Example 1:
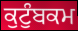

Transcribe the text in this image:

ਕੁਟੁੰਬਕਮ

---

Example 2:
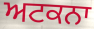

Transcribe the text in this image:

ਅਟਕਨਾ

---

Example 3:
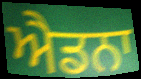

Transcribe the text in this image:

ਐਡਨਾ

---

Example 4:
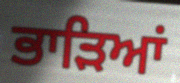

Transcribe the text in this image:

ਭਾੜਿਆਂ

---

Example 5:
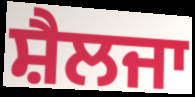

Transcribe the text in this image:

ਸ਼ੈਲਜਾ